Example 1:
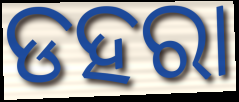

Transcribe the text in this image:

ଡହରା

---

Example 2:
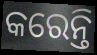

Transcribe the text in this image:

କରେନ୍ତି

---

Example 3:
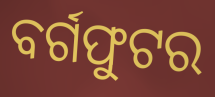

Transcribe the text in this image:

ବର୍ଗଫୁଟର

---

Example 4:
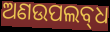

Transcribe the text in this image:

ଅଣଉପଲବ୍‌ଧ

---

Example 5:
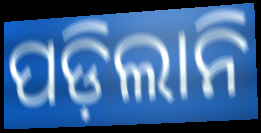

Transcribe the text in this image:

ପଡ଼ିଲାନି